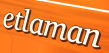
etlaman